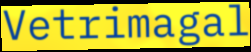
Vetrimagal